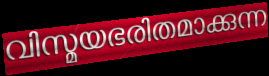
വിസ്മയഭരിതമാക്കുന്ന